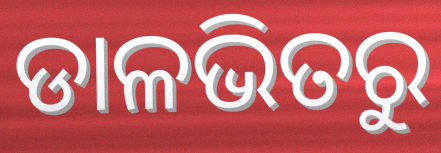
ଡାଳଭିତରୁ